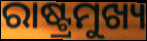
ରାଷ୍ଟ୍ରମୁଖ୍ୟ